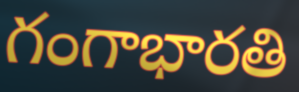
గంగాభారతి